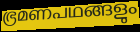
ഭ്രമണപഥങ്ങളും